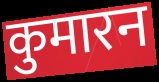
कुमारन